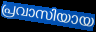
പ്രവാസിയായ